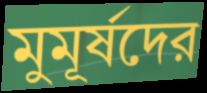
মুমূর্ষদের